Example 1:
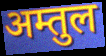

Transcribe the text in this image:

अम्तुल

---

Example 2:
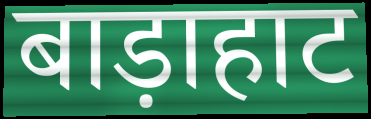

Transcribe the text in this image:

बाड़ाहाट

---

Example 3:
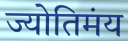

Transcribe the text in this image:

ज्योतिमंय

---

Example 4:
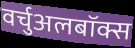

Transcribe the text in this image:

वर्चुअलबॉक्स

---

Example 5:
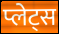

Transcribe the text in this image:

प्‍लेट्स